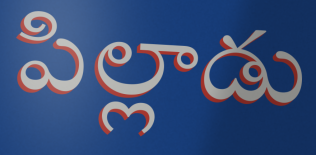
పిల్లాడు